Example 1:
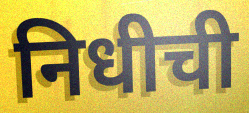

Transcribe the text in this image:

निधीची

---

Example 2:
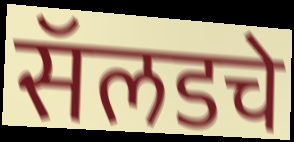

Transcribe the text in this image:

सॅलडचे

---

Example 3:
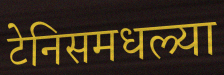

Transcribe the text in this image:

टेनिसमधल्या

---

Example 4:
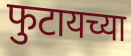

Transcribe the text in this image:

फुटायच्या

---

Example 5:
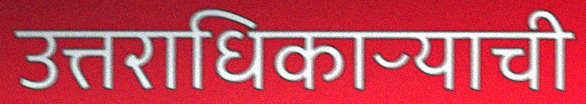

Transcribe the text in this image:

उत्तराधिकाऱ्याची